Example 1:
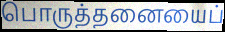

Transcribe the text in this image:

பொருத்தனையைப்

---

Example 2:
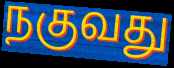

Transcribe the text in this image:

நகுவது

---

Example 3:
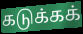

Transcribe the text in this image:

கடுக்கக்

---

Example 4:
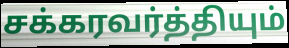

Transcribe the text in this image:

சக்கரவர்த்தியும்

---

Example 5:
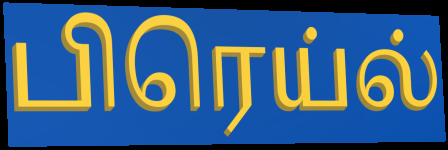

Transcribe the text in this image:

பிரெய்ல்